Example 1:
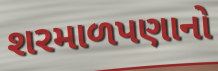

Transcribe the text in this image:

શરમાળપણાનો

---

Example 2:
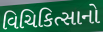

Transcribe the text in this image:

વિચિકિત્સાનો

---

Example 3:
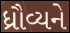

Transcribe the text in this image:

ધ્રૌવ્યને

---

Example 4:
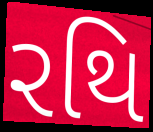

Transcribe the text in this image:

રથિ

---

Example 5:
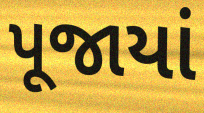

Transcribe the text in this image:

પૂજાયાં